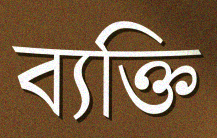
ব্যক্তি